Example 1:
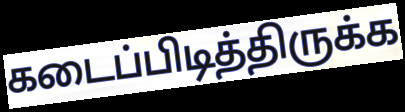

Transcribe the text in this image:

கடைப்பிடித்திருக்க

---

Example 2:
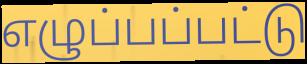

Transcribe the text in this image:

எழுப்பப்பட்டு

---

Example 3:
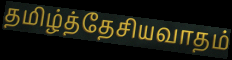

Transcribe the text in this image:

தமிழ்த்தேசியவாதம்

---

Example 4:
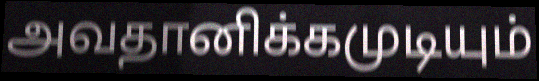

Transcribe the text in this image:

அவதானிக்கமுடியும்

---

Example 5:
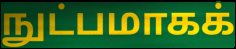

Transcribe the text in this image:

நுட்பமாகக்